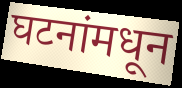
घटनांमधून